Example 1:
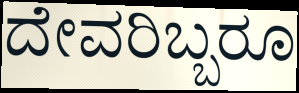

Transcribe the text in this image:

ದೇವರಿಬ್ಬರೂ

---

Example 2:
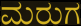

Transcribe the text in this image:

ಮರುಗ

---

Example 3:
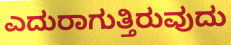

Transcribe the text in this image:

ಎದುರಾಗುತ್ತಿರುವುದು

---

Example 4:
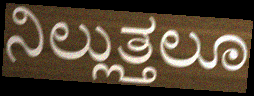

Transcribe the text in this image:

ನಿಲ್ಲುತ್ತಲೂ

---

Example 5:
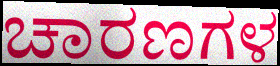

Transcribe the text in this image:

ಚಾರಣಗಳ